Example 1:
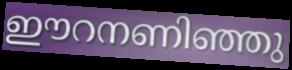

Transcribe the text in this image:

ഈറനണിഞ്ഞു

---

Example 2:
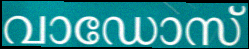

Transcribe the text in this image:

വാഡോസ്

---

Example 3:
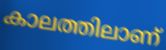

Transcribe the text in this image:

കാലത്തിലാണ്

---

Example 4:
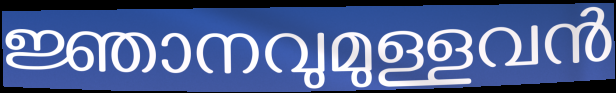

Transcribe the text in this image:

ജ്ഞാനവുമുള്ളവൻ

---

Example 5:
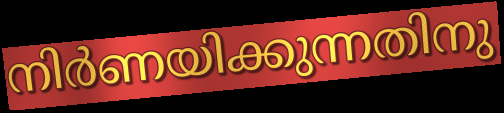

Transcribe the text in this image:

നിർണയിക്കുന്നതിനു